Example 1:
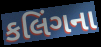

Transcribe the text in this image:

કલિંગના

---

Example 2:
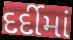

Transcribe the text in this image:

દર્દીમાં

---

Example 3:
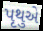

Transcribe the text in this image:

પૃથુએ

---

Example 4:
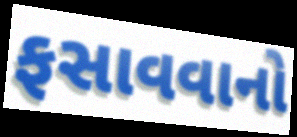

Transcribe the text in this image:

ફસાવવાનો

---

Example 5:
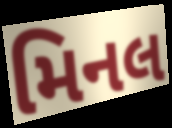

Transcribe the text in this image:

મિનલ